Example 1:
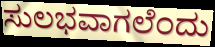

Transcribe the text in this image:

ಸುಲಭವಾಗಲೆಂದು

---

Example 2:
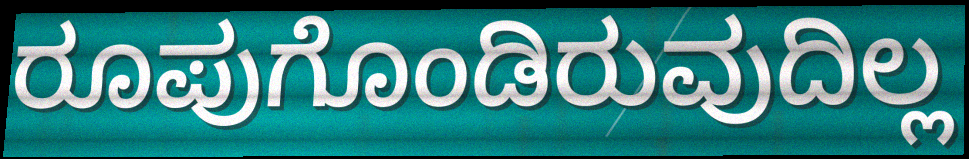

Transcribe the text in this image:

ರೂಪುಗೊಂಡಿರುವುದಿಲ್ಲ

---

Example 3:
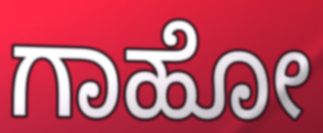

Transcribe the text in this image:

ಗಾಹೋ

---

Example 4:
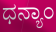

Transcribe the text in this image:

ಧನ್ಯಾಂ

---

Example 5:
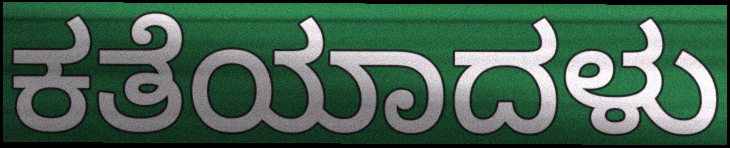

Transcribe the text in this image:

ಕತೆಯಾದಳು